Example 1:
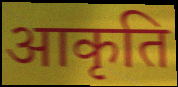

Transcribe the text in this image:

आकृति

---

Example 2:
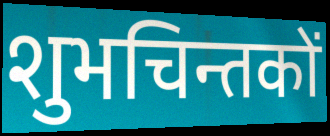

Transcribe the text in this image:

शुभचिन्तकों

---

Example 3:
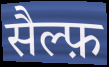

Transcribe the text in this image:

सैल्फ़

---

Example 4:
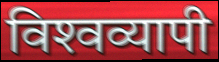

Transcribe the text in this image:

विश्‍वव्यापी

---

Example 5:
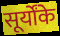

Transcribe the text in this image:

सूर्योंके